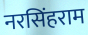
नरसिंहराम